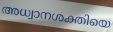
അധ്വാനശക്തിയെ